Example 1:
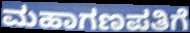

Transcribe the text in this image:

ಮಹಾಗಣಪತಿಗೆ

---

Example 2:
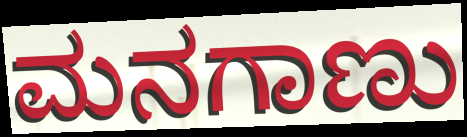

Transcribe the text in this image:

ಮನಗಾಣು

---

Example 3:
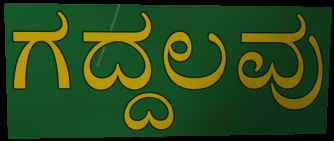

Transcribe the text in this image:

ಗದ್ದಲವು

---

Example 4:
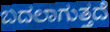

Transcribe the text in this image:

ಬದಲಾಗುತ್ತದೆ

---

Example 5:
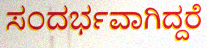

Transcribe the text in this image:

ಸಂದರ್ಭವಾಗಿದ್ದರೆ